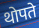
थोपते